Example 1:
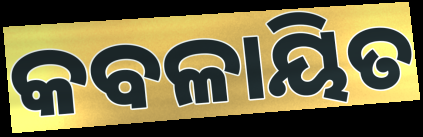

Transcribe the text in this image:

କବଳାୟିତ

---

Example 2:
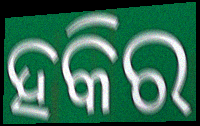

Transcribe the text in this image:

ହକିର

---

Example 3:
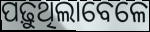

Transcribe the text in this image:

ପଢ଼ୁଥିଲାବେଳେ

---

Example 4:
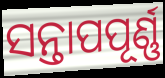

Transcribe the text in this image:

ସନ୍ତାପପୂର୍ଣ୍ଣ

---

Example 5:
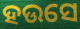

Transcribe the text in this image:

ହଉସେ